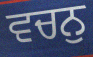
ਵਚਨੁ